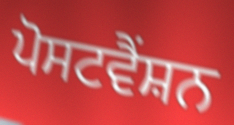
ਪੋਸਟਵੈਂਸ਼ਨ